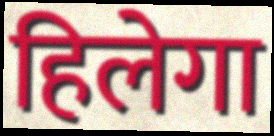
हिलेगा